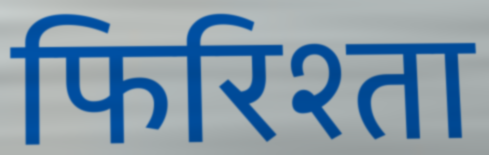
फिरिश्ता